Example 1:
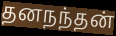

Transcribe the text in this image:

தனநந்தன்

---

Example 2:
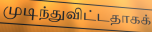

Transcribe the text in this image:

முடிந்துவிட்டதாகக்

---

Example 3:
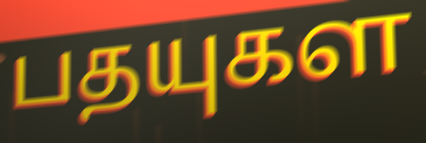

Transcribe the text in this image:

பதயுகள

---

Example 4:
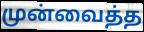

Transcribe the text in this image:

முன்வைத்த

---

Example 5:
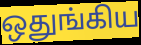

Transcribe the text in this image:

ஒதுங்கிய